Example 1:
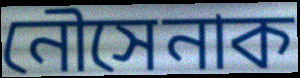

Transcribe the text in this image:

নৌসেনাক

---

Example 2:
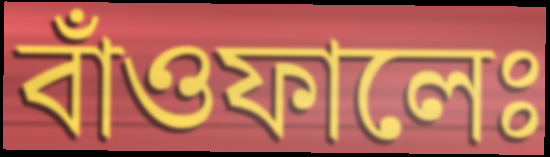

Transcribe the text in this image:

বাঁওফালেঃ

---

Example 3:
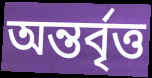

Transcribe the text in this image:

অন্তৰ্বৃত্ত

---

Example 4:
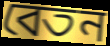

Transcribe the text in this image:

বেতন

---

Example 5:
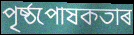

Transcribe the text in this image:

পৃষ্ঠপোষকতাৰ